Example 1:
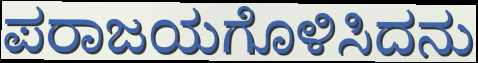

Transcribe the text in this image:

ಪರಾಜಯಗೊಳಿಸಿದನು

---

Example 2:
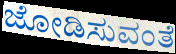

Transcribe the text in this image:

ಜೋಡಿಸುವಂತೆ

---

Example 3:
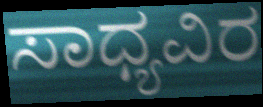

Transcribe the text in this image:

ಸಾಧ್ಯವಿರ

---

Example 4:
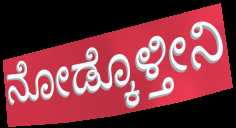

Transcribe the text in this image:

ನೋಡ್ಕೊಳ್ತೀನಿ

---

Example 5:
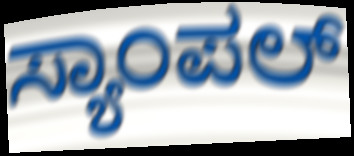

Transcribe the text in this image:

ಸ್ಯಾಂಪಲ್